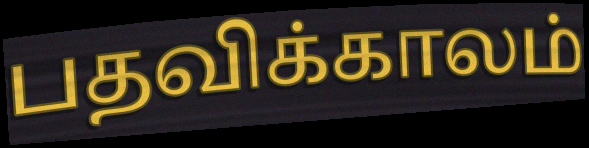
பதவிக்காலம்